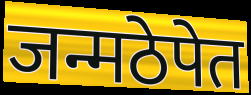
जन्मठेपेत